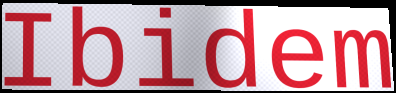
Ibidem